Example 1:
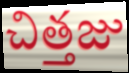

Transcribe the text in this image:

చిత్తజు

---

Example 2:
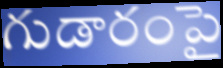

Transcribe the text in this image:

గుడారంపై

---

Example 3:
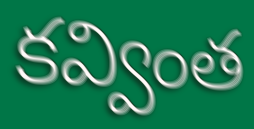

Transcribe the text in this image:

కవ్వింత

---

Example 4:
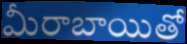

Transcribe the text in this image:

మీరాబాయితో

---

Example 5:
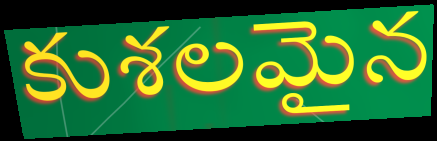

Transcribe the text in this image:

కుశలమైన